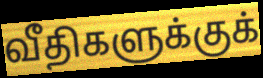
வீதிகளுக்குக்